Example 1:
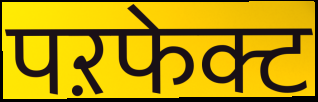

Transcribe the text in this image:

पऱफेक्ट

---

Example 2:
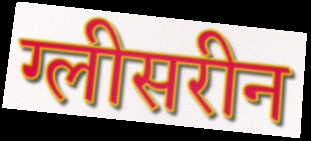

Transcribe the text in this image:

ग्लीसरीन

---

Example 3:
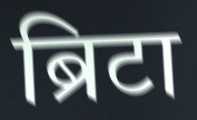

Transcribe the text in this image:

ब्रिटा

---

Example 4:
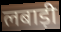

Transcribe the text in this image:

लबाड़ी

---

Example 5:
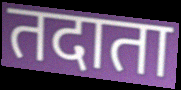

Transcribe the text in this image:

तदाता